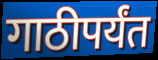
गाठीपर्यंत